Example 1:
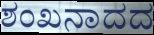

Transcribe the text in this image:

ಶಂಖನಾದದ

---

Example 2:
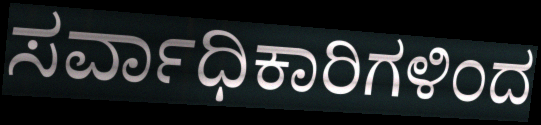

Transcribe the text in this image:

ಸರ್ವಾಧಿಕಾರಿಗಳಿಂದ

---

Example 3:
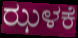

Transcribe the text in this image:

ಝಳಕೆ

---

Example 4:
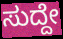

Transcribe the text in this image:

ಸುದ್ದೇ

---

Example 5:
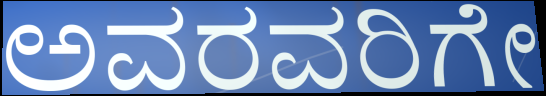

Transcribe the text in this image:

ಅವರವರಿಗೇ